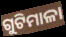
ଗୁଟିମାଳା